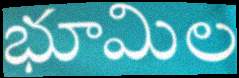
భూమిల